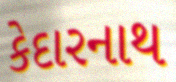
કેદારનાથ